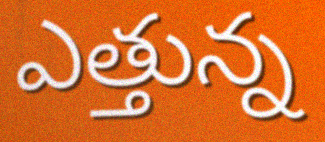
ఎత్తున్న